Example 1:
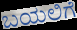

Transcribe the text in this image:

ಬಯಲಿಗೆ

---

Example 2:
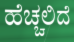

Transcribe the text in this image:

ಹೆಚ್ಚಲಿದೆ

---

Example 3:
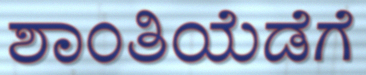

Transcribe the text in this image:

ಶಾಂತಿಯೆಡೆಗೆ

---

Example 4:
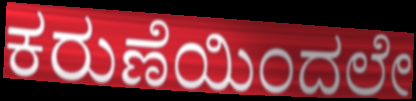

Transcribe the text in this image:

ಕರುಣೆಯಿಂದಲೇ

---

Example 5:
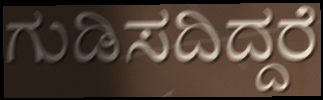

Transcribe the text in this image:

ಗುಡಿಸದಿದ್ದರೆ